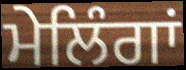
ਮੇਲਿੰਗਾਂ